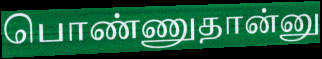
பொண்ணுதான்னு